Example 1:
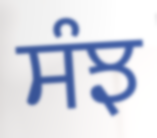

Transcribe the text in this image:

ਸੰਝ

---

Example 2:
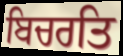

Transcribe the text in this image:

ਬਿਚਰਤਿ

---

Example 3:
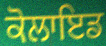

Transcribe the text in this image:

ਕੋਲਾਇਡ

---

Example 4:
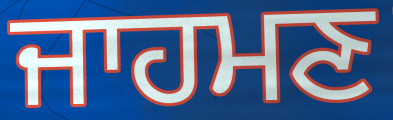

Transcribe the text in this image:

ਜਾਹਮਣ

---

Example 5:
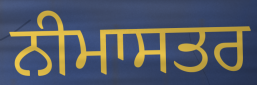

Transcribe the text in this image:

ਨੀਮਾਸਤਰ